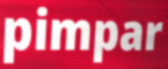
pimpar